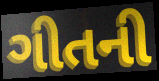
ગીતની